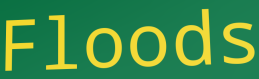
Floods